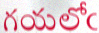
గయలోఁ